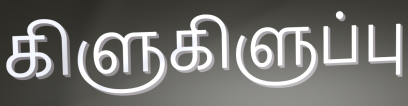
கிளுகிளுப்பு